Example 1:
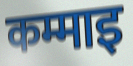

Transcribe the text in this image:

कम्माइ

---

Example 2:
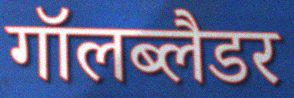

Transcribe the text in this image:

गॉलब्लैडर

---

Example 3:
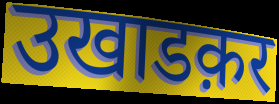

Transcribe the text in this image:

उखाडक़र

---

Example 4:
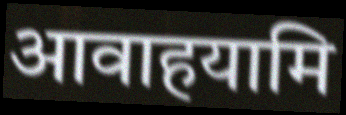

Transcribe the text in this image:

आवाहयामि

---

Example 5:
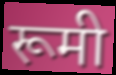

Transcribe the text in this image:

रूमी